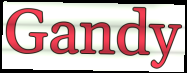
Gandy